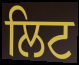
ਲਿਟ